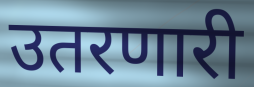
उतरणारी